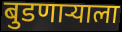
बुडणाऱ्याला